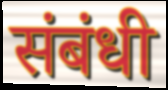
संबंधी